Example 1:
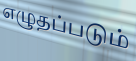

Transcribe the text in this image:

எழுதப்படும்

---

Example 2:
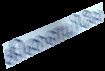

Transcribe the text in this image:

கிளையிலே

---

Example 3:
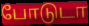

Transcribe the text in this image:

போடுடா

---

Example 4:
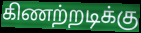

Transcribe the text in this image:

கிணற்றடிக்கு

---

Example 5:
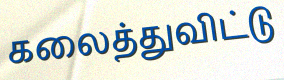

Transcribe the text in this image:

கலைத்துவிட்டு